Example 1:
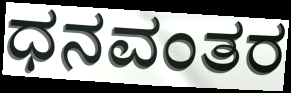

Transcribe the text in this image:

ಧನವಂತರ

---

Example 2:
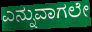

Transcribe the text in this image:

ಎನ್ನುವಾಗಲೇ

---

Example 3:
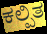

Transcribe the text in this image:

ಕಲ್ಪಿತ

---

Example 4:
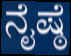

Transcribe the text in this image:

ನೈಷ್ಠೆ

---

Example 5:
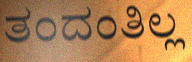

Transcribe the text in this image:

ತಂದಂತಿಲ್ಲ